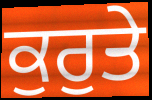
ਕੁਰੁਤੇ